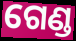
ଗେଣ୍ଡ